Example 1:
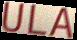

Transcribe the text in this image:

ULA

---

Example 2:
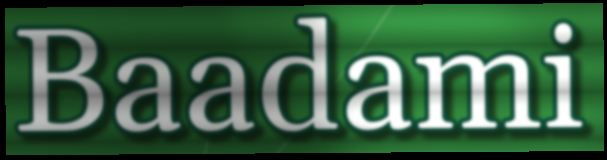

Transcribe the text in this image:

Baadami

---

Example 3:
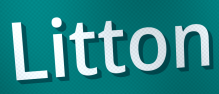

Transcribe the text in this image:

Litton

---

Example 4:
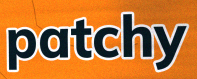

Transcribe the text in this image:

patchy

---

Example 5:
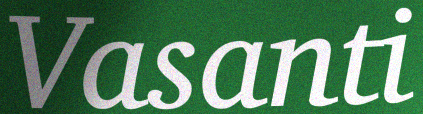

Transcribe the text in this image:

Vasanti